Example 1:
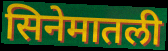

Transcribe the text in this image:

सिनेमातली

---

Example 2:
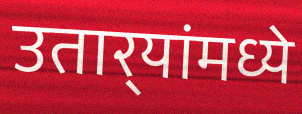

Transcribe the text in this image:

उतार्‍यांमध्ये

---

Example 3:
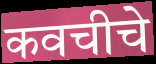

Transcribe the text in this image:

कवचीचे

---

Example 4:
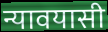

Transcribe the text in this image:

न्यावयासी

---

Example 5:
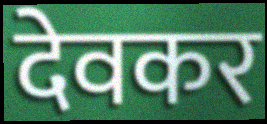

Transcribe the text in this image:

देवकर